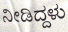
ನೀಡಿದ್ದಳು